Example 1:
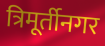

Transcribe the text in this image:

त्रिमूर्तीनगर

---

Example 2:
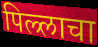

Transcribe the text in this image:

पिल्लाचा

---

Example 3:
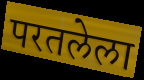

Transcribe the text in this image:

परतलेला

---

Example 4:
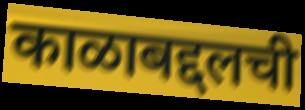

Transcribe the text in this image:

काळाबद्दलची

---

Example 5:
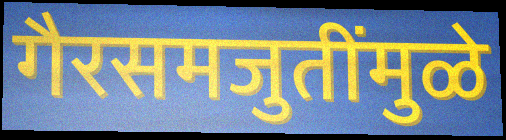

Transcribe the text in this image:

गैरसमजुतींमुळे